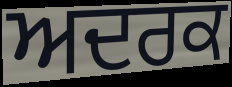
ਅਦਰਕ